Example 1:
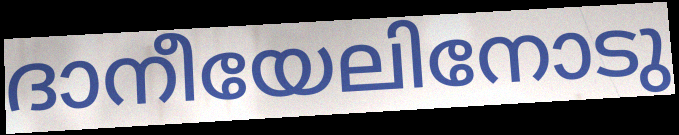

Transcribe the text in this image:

ദാനീയേലിനോടു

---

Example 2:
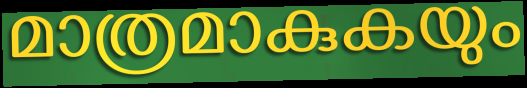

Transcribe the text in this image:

മാത്രമാകുകയും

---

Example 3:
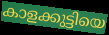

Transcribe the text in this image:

കാളക്കുട്ടിയെ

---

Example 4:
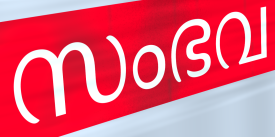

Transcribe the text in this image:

സംഭവ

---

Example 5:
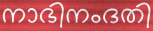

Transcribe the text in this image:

നാഭിനംദതി